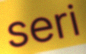
seri